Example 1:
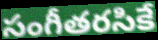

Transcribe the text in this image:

సంగీతరసికే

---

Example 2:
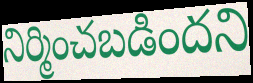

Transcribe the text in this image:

నిర్మించబడిందని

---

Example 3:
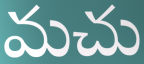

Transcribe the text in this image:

మచు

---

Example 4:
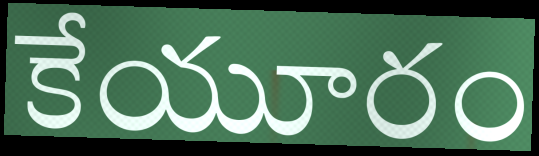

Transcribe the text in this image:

కేయూరం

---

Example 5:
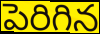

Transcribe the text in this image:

పెరిగిన